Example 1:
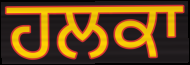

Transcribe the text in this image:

ਹਲਕਾ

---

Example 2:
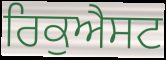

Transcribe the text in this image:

ਰਿਕੁਐਸਟ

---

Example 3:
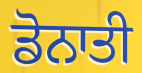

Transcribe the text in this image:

ਡੋਨਾਤੀ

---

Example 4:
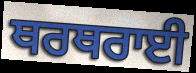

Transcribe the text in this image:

ਥਰਥਰਾਈ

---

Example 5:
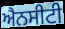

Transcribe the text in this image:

ਐਨਸੀਟੀ